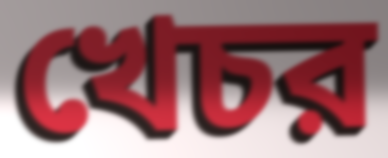
খেচর